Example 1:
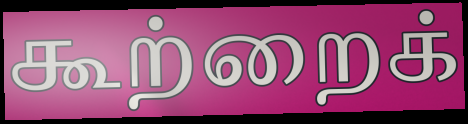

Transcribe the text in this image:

கூற்றைக்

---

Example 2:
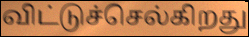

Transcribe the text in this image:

விட்டுச்செல்கிறது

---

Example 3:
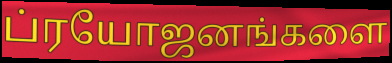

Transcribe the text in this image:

ப்ரயோஜனங்களை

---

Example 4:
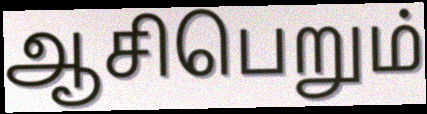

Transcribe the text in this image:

ஆசிபெறும்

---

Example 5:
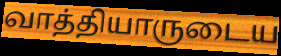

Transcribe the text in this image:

வாத்தியாருடைய